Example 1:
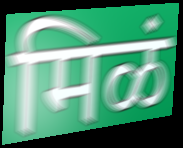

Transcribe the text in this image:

मिळं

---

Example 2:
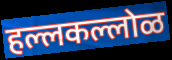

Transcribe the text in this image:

हल्लकल्लोळ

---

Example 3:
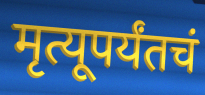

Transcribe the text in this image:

मृत्यूपर्यंतचं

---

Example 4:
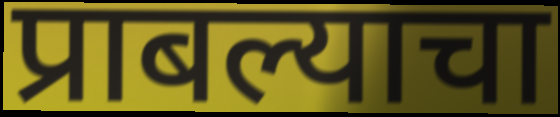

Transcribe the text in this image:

प्राबल्याचा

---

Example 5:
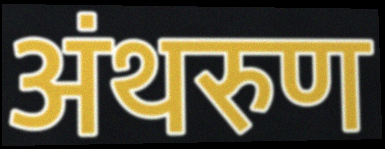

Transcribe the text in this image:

अंथरुण